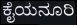
ಕೈಯನೂರಿ